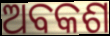
ଅବକଶ